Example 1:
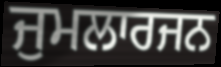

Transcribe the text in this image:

ਜੁਮਲਾਰਜਨ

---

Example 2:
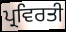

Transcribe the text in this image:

ਪ੍ਰਵਿਰਤੀ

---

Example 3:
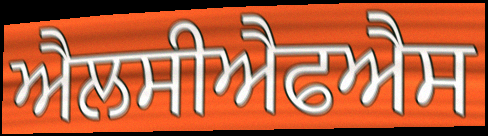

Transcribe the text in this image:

ਐਲਸੀਐਫਐਸ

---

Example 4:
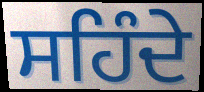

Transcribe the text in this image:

ਸਹਿੰਦੇ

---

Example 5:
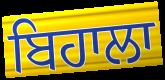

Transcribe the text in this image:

ਬਿਹਾਲਾ